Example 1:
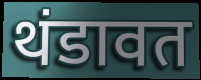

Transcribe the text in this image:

थंडावत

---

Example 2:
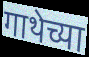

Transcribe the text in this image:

गाथेच्या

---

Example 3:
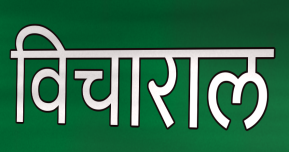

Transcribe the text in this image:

विचाराल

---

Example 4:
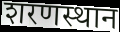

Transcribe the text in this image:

शरणस्थान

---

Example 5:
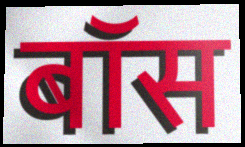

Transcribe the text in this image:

बॉस